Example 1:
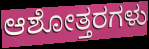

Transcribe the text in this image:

ಆಶೋತ್ತರಗಳು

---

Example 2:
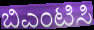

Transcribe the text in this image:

ಬಿಎಂಟಿಸಿ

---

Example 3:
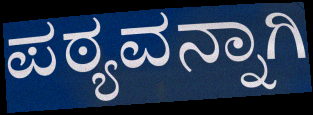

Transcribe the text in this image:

ಪಠ್ಯವನ್ನಾಗಿ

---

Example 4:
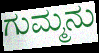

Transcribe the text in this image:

ಗುಮ್ಮನು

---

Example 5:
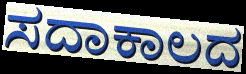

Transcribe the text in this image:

ಸದಾಕಾಲದ